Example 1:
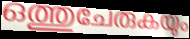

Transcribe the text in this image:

ഒത്തുചേരുകയും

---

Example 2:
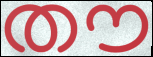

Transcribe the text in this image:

തൗ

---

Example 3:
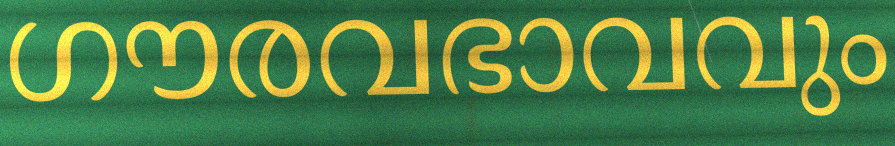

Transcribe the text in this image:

ഗൗരവഭാവവും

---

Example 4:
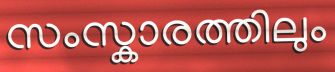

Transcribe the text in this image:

സംസ്കാരത്തിലും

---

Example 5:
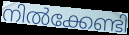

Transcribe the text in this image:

നിൽക്കേണ്ടി